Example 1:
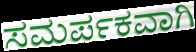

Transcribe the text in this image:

ಸಮರ್ಪಕವಾಗಿ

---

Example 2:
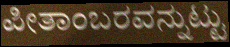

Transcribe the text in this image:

ಪೀತಾಂಬರವನ್ನುಟ್ಟು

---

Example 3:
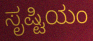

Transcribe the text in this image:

ಸೃಷ್ಟಿಯಂ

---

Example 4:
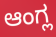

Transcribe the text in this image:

ಆಂಗ್ಲ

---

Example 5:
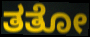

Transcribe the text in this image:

ತತೋ